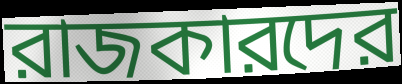
রাজকারদের